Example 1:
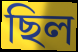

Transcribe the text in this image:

ছিল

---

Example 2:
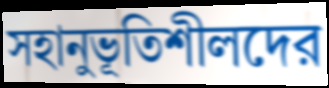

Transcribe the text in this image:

সহানুভূতিশীলদের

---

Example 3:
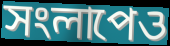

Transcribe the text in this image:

সংলাপেও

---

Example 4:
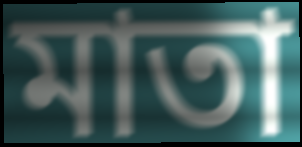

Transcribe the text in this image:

মাতা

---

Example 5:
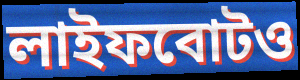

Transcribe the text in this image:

লাইফবোটও